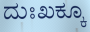
ದುಃಖಕ್ಕೂ